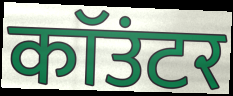
कॉउंटर